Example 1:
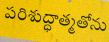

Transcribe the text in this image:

పరిశుద్ధాత్మతోను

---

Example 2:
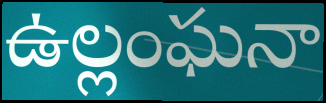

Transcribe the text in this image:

ఉల్లంఘనా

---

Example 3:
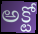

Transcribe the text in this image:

అక్టో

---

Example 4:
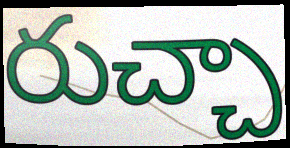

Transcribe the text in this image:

రుచ్చా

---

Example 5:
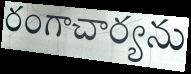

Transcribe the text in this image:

రంగాచార్యను